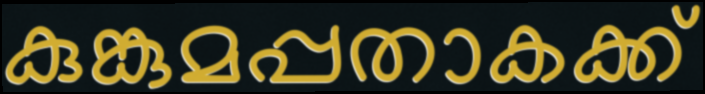
കുങ്കുമപ്പതാകക്ക്